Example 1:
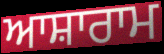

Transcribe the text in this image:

ਆਸ਼ਾਰਾਮ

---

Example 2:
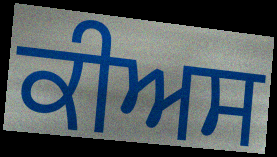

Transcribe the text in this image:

ਕੀਅਸ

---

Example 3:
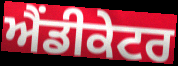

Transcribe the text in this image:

ਐਂਡੀਕੇਟਰ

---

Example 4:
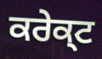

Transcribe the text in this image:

ਕਰੇਕ੍ਟ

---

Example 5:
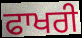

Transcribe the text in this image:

ਫਾਖਰੀ